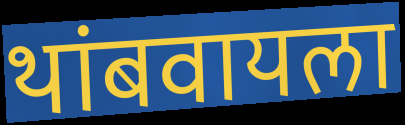
थांबवायला